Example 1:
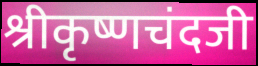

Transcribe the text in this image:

श्रीकृष्णचंदजी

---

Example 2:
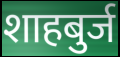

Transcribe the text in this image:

शाहबुर्ज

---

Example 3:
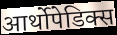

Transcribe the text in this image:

आर्थोपेडिक्स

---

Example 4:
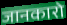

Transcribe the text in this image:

जानकारो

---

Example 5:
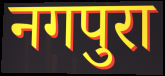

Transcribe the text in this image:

नगपुरा